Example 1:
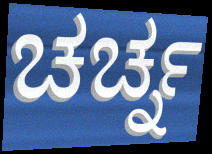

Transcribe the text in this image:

ಚರ್ಚ್ನ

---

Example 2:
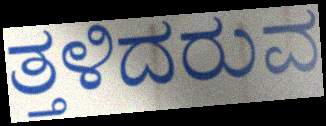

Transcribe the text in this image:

ತ್ತಳಿದರುವ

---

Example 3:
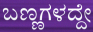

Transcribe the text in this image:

ಬಣ್ಣಗಳದ್ದೇ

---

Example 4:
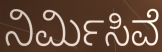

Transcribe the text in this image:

ನಿರ್ಮಿಸಿವೆ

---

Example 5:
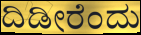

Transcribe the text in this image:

ದಿಡೀರೆಂದು